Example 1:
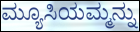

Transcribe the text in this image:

ಮ್ಯೂಸಿಯಮ್ಮನ್ನು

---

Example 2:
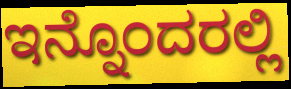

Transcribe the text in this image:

ಇನ್ನೊಂದರಲ್ಲಿ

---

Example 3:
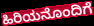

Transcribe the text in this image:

ಹಿರಿಯನೊಂದಿಗೆ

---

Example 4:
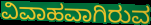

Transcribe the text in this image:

ವಿವಾಹವಾಗಿರುವ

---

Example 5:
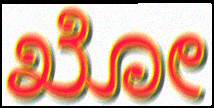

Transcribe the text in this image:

ಖೋ